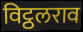
विट्ठलराव